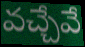
వచ్చేవే